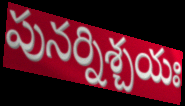
పునర్నిశ్చయః